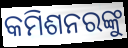
କମିଶନରଙ୍କୁ